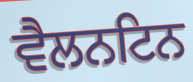
ਵੈਲਨਟਿਨ